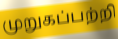
முறுகப்பற்றி